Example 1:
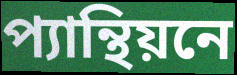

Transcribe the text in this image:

প্যান্থিয়নে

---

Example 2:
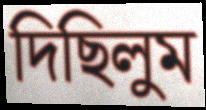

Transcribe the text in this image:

দিছিলুম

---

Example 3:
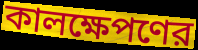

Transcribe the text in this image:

কালক্ষেপণের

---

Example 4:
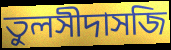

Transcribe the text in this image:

তুলসীদাসজি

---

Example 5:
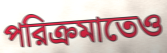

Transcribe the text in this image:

পরিক্রমাতেও